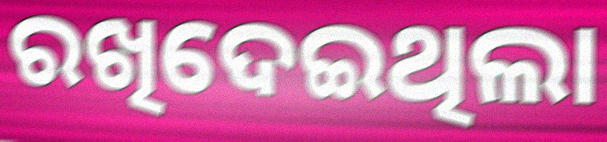
ରଖିଦେଇଥିଲା